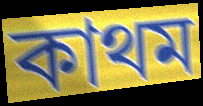
কাথম